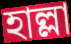
হাল্লা